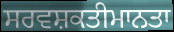
ਸਰਵਸ਼ਕਤੀਮਾਨਤਾ